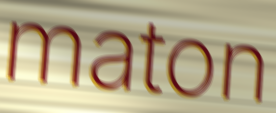
maton